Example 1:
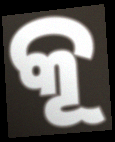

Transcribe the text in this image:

କୂ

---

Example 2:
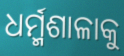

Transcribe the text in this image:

ଧର୍ମ୍ମଶାଳାକୁ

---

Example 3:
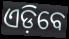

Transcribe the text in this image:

ଏଡ଼ିବେ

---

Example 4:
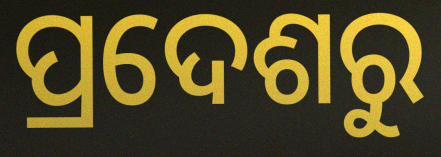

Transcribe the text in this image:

ପ୍ରଦେଶରୁ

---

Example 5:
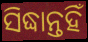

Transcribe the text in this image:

ସିଦ୍ଧାନ୍ତହିଁ